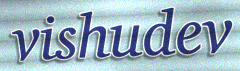
vishudev